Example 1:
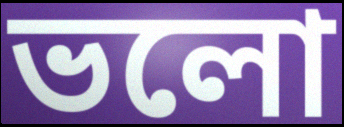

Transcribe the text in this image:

ভলো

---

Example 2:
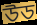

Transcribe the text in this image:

উড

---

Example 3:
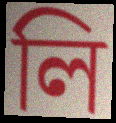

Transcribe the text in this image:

লি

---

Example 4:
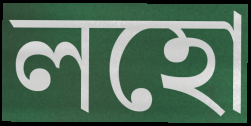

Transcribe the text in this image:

লহো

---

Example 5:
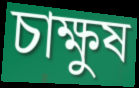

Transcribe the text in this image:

চাক্ষুষ